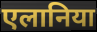
एलानिया